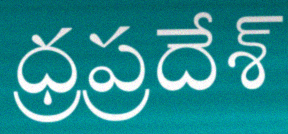
ధ్రప్రదేశ్